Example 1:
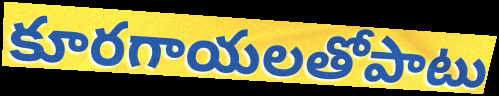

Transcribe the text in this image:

కూరగాయలతోపాటు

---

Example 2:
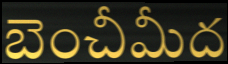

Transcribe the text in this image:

బెంచీమీద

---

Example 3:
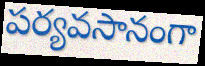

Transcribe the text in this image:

పర్యవసానంగా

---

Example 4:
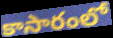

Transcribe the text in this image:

కాసారంలో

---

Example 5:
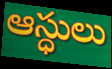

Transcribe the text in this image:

ఆస్ధులు